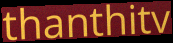
thanthitv